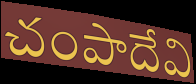
చంపాదేవి